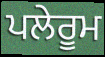
ਪਲੇਰੂਮ